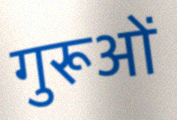
गुरूओं